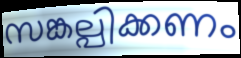
സങ്കല്പിക്കണം